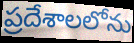
ప్రదేశాలలోను